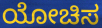
ಯೋಚಿಸ